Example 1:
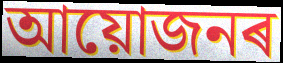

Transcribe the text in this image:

আয়োজনৰ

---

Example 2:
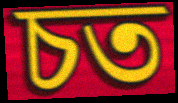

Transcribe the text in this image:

চত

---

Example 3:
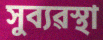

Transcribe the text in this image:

সুব্যৱস্থা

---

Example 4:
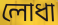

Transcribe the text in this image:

লোধা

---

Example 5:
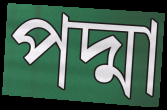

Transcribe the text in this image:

পদ্মা